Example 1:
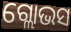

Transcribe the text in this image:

ଗ୍ଲୋଭସ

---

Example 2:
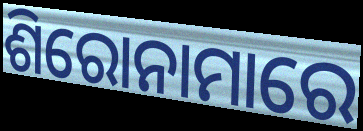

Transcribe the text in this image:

ଶିରୋନାମାରେ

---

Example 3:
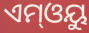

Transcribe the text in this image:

ଏମ୍ଓୟୁ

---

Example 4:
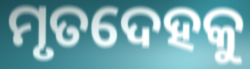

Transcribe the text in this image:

ମୃତଦେହକୁ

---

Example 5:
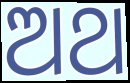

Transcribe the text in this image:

ଅଥ